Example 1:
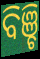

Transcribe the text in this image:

ବିଞ୍ଚି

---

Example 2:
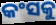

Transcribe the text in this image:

କଂସକୁ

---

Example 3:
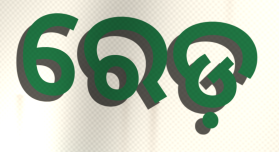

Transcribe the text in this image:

ରେଡ଼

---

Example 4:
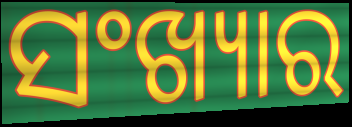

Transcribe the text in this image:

ସଂଖ୍ୟାର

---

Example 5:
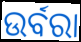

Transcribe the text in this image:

ଉର୍ବରା